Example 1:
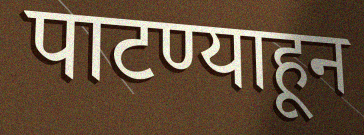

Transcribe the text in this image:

पाटण्याहून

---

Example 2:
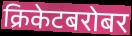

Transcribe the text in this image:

क्रिकेटबरोबर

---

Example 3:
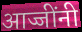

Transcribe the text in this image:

आज्जींनी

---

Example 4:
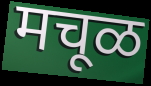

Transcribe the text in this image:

मचूळ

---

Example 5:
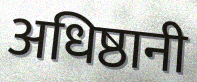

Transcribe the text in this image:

अधिष्ठानी